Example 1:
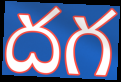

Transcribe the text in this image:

దగ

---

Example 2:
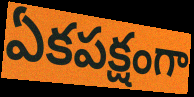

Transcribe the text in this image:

ఏకపక్షంగా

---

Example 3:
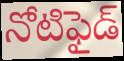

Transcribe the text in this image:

నోటిఫైడ్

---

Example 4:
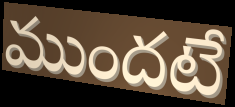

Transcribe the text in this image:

ముందటే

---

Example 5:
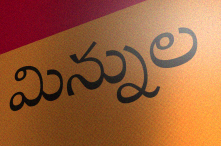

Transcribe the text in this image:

మిన్నుల